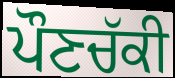
ਪੌਣਚੱਕੀ